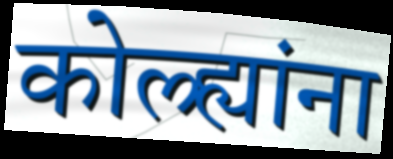
कोल्ह्यांना